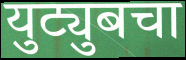
युट्युबचा